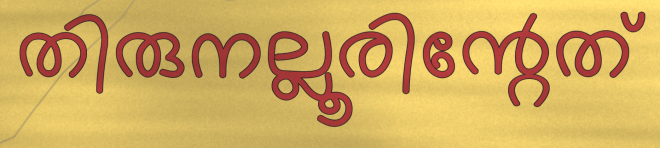
തിരുനല്ലൂരിന്റേത്